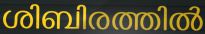
ശിബിരത്തിൽ